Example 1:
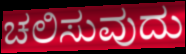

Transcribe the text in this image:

ಚಲಿಸುವುದು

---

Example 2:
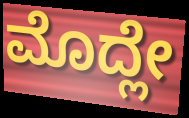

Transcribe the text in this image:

ಮೊದ್ಲೇ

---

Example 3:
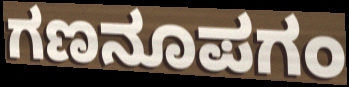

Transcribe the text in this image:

ಗಣನೂಪಗಂ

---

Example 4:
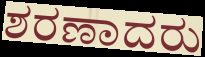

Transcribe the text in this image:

ಶರಣಾದರು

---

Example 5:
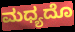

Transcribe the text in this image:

ಮಧ್ಯದೊ